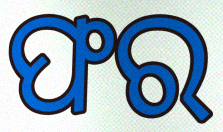
ଫର